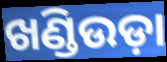
ଖଣ୍ଡିଉଡ଼ା